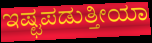
ಇಷ್ಟಪಡುತ್ತೀಯಾ